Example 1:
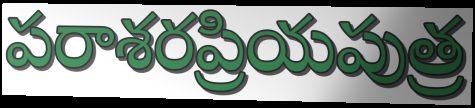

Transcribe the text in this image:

పరాశరప్రియపుత్ర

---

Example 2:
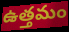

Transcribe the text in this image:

ఉత్తమం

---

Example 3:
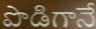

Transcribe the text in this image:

పొడిగానే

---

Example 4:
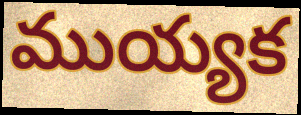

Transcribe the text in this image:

ముయ్యక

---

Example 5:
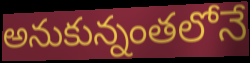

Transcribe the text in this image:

అనుకున్నంతలోనే